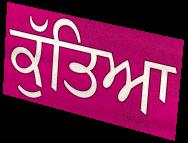
ਕੁੱਤਿਆ